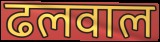
ढलवाल